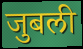
जुबली